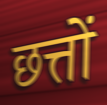
छत्तों